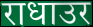
राधाउर